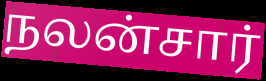
நலன்சார்